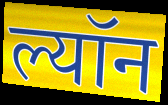
ल्यॉन